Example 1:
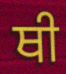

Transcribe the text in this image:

ਥੀ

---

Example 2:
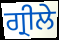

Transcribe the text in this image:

ਗ੍ਰੀਲੇ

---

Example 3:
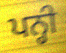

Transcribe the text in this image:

ਪਨ੍ਹੀ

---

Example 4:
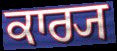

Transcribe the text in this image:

ਕਾਰ੍ਯ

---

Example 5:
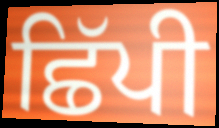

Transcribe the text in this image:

ਛਿੱਪੀ